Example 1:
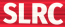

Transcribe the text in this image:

SLRC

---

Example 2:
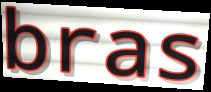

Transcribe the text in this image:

bras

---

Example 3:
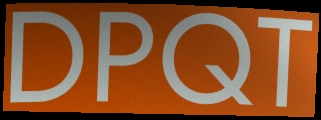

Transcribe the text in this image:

DPQT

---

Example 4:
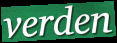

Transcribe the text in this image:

verden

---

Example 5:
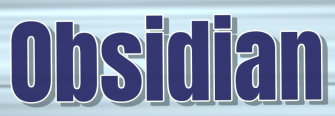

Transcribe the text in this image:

Obsidian